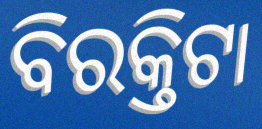
ବିରକ୍ତିଟା